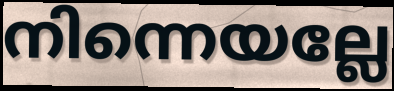
നിന്നെയല്ലേ